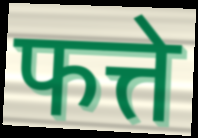
फत्ते